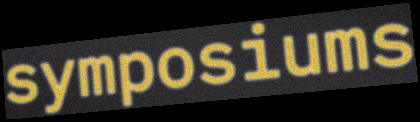
symposiums